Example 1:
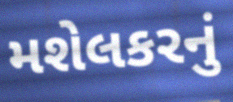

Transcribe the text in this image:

મશેલકરનું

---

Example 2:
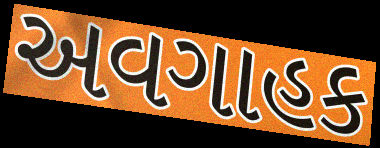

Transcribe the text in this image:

અવગાહક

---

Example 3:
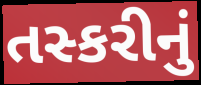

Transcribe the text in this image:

તસ્કરીનું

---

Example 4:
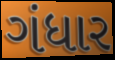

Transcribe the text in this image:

ગંધાર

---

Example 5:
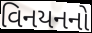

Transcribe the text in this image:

વિનયનનો